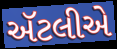
ઍટલીએ